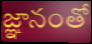
జ్ఞానంతో